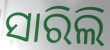
ସାରିଲି